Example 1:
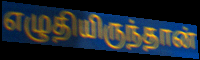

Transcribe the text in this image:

எழுதியிருந்தான்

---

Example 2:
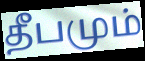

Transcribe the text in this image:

தீபமும்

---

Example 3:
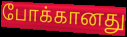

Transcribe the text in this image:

போக்கானது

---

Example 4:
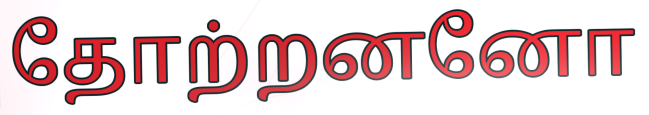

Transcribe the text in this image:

தோற்றனனோ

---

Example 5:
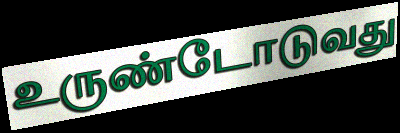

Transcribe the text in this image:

உருண்டோடுவது